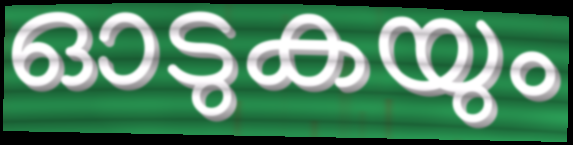
ഓടുകയും